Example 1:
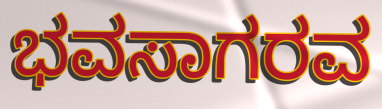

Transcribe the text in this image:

ಭವಸಾಗರವ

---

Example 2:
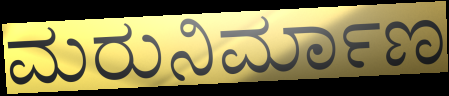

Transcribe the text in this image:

ಮರುನಿರ್ಮಾಣ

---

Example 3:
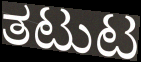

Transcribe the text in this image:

ತಟುಟ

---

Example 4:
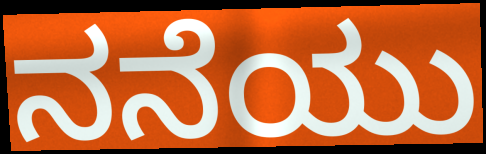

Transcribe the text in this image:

ನನೆಯು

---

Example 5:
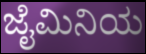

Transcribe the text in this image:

ಜೈಮಿನಿಯ